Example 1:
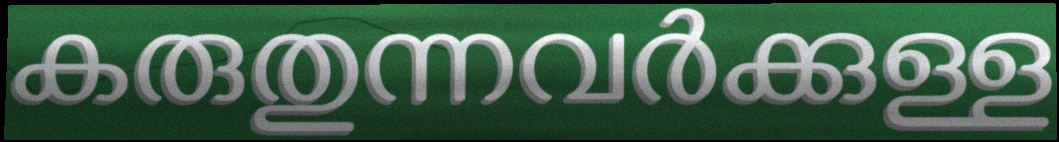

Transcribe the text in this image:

കരുതുന്നവർക്കുള്ള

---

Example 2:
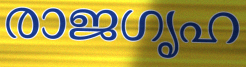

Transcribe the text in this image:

രാജഗൃഹ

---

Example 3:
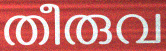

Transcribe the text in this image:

തീരുവ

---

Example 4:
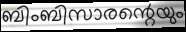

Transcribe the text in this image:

ബിംബിസാരന്റെയും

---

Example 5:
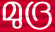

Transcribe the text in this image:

മുദ്ര